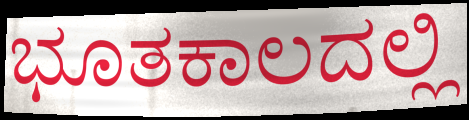
ಭೂತಕಾಲದಲ್ಲಿ